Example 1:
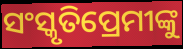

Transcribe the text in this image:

ସଂସ୍କୃତିପ୍ରେମୀଙ୍କୁ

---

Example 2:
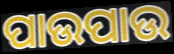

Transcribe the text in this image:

ପାଉପାଉ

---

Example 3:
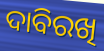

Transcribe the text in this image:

ଦାବିରଖି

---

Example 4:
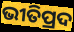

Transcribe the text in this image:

ଭୀତିପ୍ରଦ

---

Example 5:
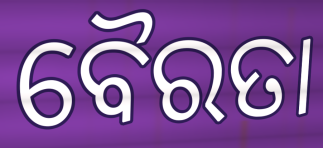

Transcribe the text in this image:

ବୈରତା